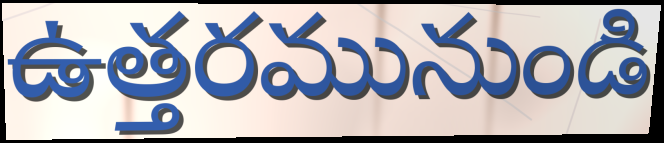
ఉత్తరమునుండి